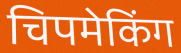
चिपमेकिंग